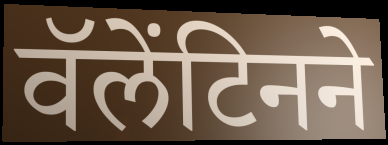
वॅलेंटिनने